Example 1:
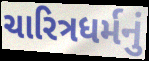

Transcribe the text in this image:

ચારિત્રધર્મનું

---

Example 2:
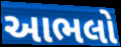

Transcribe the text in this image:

આભલો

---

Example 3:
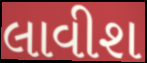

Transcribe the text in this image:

લાવીશ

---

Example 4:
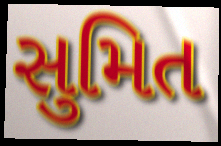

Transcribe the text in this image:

સુમિત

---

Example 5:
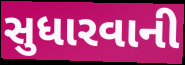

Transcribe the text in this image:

સુધારવાની